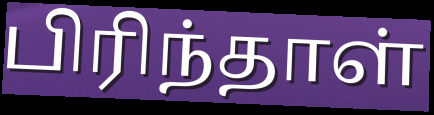
பிரிந்தாள்